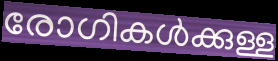
രോഗികൾക്കുള്ള